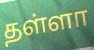
தள்ளா